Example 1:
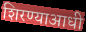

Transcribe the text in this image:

शिरण्याआधी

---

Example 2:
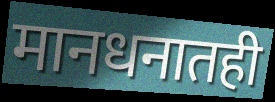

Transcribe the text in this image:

मानधनातही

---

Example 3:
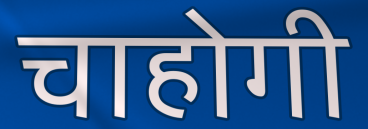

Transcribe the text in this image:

चाहोगी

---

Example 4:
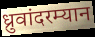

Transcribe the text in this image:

ध्रुवांदरम्यान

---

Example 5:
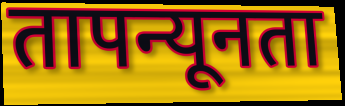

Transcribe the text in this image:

तापन्यूनता